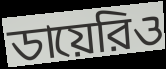
ডায়েরিও